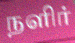
நளிர்